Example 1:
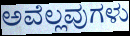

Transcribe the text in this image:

ಅವೆಲ್ಲವುಗಳು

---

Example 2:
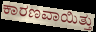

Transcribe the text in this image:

ಕಾರಣವಾಯಿತ್ತು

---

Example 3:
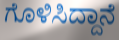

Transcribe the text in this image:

ಗೊಳಿಸಿದ್ದಾನೆ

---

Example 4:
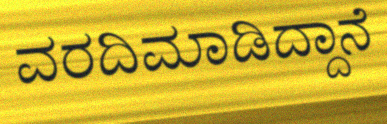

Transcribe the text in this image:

ವರದಿಮಾಡಿದ್ದಾನೆ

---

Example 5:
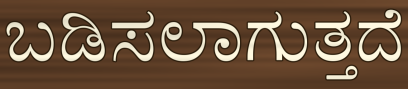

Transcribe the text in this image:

ಬಡಿಸಲಾಗುತ್ತದೆ